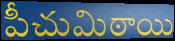
పీచుమిఠాయి